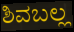
ಶಿವಬಲ್ಲ